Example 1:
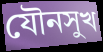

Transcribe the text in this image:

যৌনসুখ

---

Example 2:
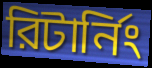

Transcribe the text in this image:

রিটার্নিং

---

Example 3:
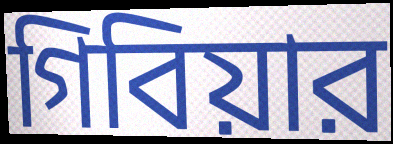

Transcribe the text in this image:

গিবিয়ার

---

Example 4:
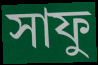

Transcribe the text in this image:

সাফু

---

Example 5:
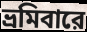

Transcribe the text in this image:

ভ্রমিবারে